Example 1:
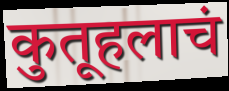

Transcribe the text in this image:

कुतूहलाचं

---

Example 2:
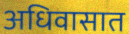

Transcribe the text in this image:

अधिवासात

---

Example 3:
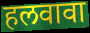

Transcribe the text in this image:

हलवावा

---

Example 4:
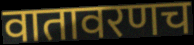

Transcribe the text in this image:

वातावरणच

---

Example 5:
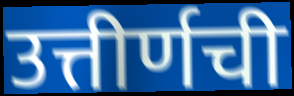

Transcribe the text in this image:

उत्तीर्णची